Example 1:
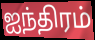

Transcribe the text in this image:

ஐந்திரம்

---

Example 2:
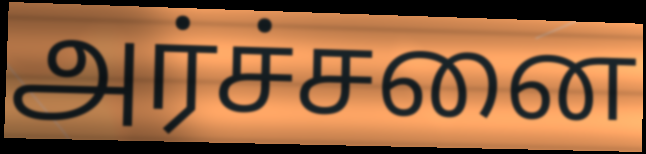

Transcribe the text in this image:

அர்ச்சனை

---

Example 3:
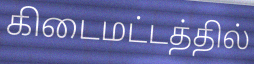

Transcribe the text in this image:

கிடைமட்டத்தில்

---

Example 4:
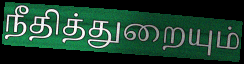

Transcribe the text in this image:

நீதித்துறையும்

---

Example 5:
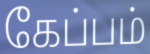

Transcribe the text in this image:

கேப்பம்